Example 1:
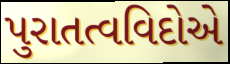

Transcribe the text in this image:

પુરાતત્વવિદોએ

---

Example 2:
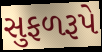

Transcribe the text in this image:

સુફળરૂપે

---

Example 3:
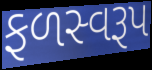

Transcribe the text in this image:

ફળસ્વરૂપ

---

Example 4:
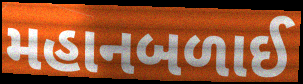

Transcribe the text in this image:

મહાનબળાઈ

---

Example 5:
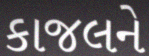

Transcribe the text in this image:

કાજલને